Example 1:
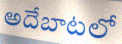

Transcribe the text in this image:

అదేబాటలో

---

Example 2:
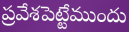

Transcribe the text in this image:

ప్రవేశపెట్టేముందు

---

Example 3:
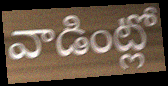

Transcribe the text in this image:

వాడింట్లో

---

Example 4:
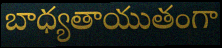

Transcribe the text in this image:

బాధ్యతాయుతంగా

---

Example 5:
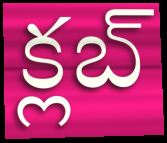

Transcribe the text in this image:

క్లబ్